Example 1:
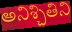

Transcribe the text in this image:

అనిశ్చితిని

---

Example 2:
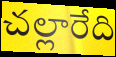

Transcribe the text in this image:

చల్లారేది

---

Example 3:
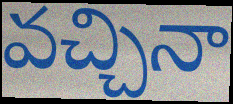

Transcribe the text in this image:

వచ్చినా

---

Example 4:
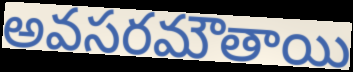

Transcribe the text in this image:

అవసరమౌతాయి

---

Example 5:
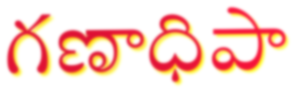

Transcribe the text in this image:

గణాధిపా